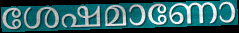
ശേഷമാണോ